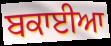
ਬਕਾਈਆ